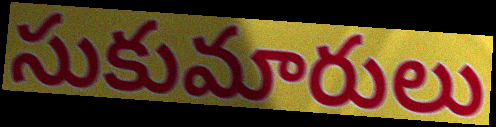
సుకుమారులు